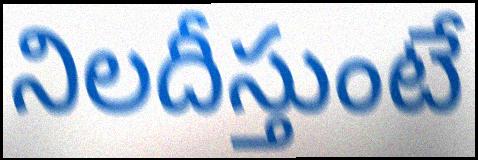
నిలదీస్తుంటే